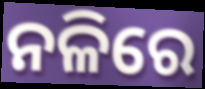
ନଳିରେ